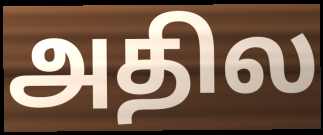
அதில